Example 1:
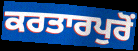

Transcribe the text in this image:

ਕਰਤਾਰਪੁਰੋਂ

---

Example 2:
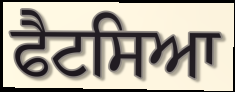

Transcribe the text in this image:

ਫੈਟਸਿਆ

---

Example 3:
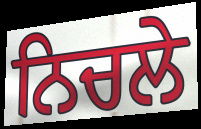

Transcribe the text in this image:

ਨਿਚਲੇ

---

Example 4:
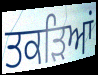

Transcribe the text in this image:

ਤਕੜਿਆਂ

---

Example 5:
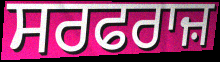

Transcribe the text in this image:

ਸਰਫਰਾਜ਼